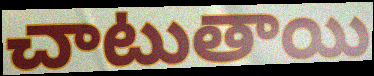
చాటుతాయి